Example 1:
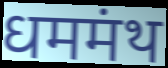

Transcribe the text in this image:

धममंथ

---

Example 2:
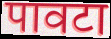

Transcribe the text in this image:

पावटा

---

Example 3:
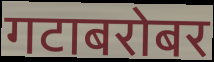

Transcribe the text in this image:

गटाबरोबर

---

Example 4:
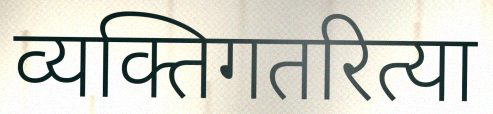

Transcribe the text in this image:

व्यक्तिगतरित्या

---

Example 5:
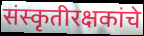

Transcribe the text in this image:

संस्कृतीरक्षकांचे